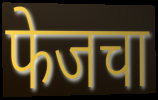
फेजचा